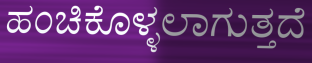
ಹಂಚಿಕೊಳ್ಳಲಾಗುತ್ತದೆ